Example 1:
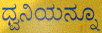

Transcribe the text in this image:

ಧ್ವನಿಯನ್ನೂ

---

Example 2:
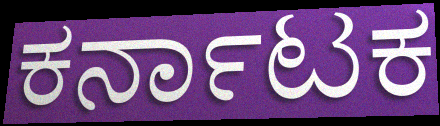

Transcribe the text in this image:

ಕರ್ನಾಟಕ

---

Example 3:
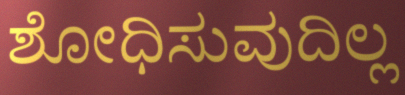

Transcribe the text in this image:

ಶೋಧಿಸುವುದಿಲ್ಲ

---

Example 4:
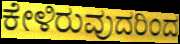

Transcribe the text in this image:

ಕೇಳಿರುವುದರಿಂದ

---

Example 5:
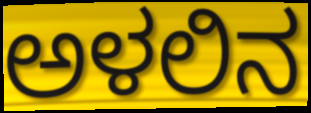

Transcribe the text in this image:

ಅಳಲಿನ